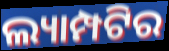
ଲ୍ୟାମ୍ପଟିର